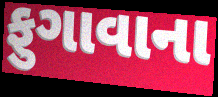
ફુગાવાના